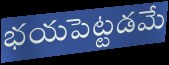
భయపెట్టడమే